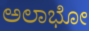
ಅಲಾಭೋ